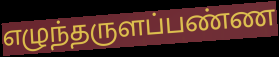
எழுந்தருளப்பண்ண